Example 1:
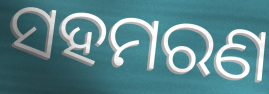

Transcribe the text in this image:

ସହମରଣ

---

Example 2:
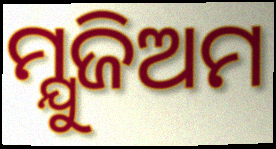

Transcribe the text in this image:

ମ୍ଯୁଜିଅମ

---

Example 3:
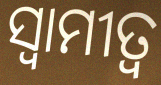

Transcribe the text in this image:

ସ୍ଵାମୀତ୍ବ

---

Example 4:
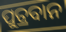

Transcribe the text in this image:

ପୁତ୍ରବାନ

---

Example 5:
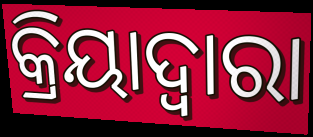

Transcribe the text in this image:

କ୍ରିୟାଦ୍ଵାରା